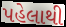
પહેલાથી